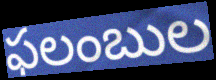
ఫలంబుల